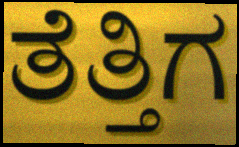
ತೆತ್ತಿಗ